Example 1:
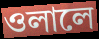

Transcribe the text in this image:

ওলালে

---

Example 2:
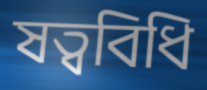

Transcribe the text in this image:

ষত্ববিধি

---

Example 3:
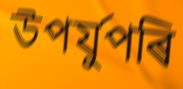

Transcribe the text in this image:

উপৰ্যুপৰি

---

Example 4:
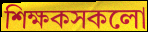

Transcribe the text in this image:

শিক্ষকসকলো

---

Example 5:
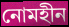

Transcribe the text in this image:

নোমহীন